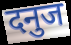
दनुज